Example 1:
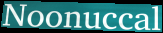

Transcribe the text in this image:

Noonuccal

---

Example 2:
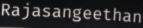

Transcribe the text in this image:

Rajasangeethan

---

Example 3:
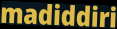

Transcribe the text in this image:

madiddiri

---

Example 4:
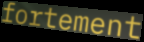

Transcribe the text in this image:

fortement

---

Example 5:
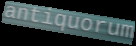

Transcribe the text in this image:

antiquorum